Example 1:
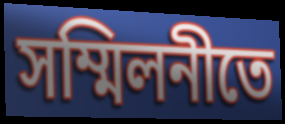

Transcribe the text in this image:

সম্মিলনীতে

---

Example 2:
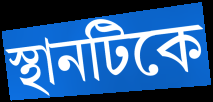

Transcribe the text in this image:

স্থানটিকে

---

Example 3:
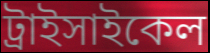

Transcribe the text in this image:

ট্রাইসাইকেল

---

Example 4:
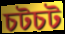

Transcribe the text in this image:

চটচট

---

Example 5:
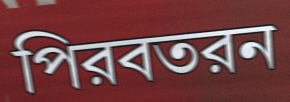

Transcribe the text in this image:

পিরবতরন